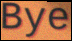
Bye